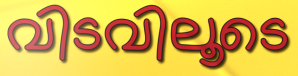
വിടവിലൂടെ